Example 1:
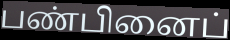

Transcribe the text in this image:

பண்பினைப்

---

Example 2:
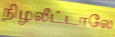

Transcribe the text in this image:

நிழலீட்டாலே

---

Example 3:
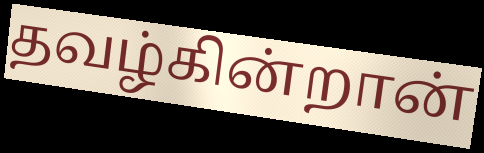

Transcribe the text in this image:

தவழ்கின்றான்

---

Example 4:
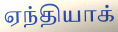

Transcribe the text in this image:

ஏந்தியாக்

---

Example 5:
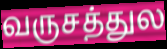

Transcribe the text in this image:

வருசத்துல